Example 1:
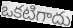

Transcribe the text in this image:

ఒకటిగాదు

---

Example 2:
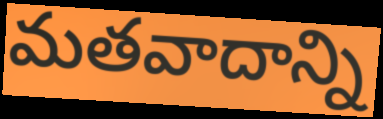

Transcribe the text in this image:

మతవాదాన్ని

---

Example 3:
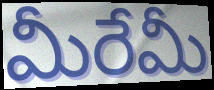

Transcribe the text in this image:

మీరేమీ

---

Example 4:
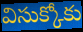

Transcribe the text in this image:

విసుక్కోకు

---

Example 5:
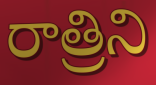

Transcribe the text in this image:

రాత్రిని